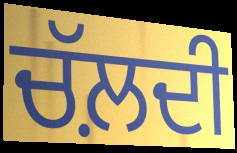
ਚੱਲ਼ਦੀ